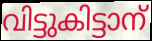
വിട്ടുകിട്ടാന്